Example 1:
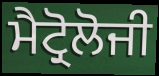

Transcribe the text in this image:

ਮੈਟ੍ਰੋਲੋਜੀ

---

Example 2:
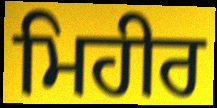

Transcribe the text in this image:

ਮਿਹੀਰ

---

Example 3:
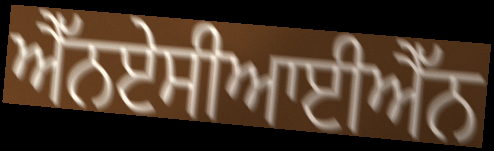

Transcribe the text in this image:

ਐੱਨਏਸੀਆਈਐੱਨ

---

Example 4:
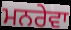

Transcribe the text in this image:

ਮਨਰੇਵਾ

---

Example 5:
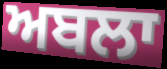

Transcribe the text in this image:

ਅਬਲਾ